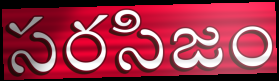
సరసిజం